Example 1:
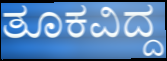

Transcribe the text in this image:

ತೂಕವಿದ್ದ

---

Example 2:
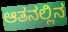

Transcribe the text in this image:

ಆತನಲ್ಲಿನ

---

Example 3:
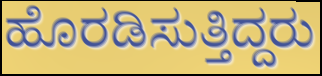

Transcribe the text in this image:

ಹೊರಡಿಸುತ್ತಿದ್ದರು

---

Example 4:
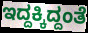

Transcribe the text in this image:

ಇದ್ದಕ್ಕಿದ್ದಂತೆ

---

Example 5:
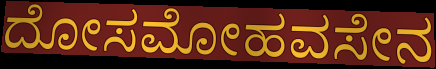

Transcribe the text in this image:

ದೋಸಮೋಹವಸೇನ